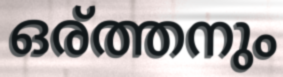
ഒര്ത്തനും